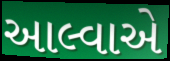
આલ્વાએ